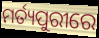
ମର୍ତ୍ୟପୁରୀରେ